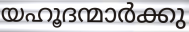
യഹൂദന്മാർക്കു